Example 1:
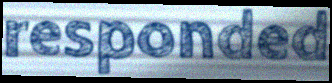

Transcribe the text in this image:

responded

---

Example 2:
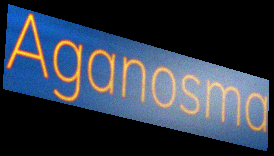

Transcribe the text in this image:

Aganosma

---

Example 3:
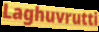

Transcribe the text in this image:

Laghuvrutti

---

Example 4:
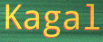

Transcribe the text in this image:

Kagal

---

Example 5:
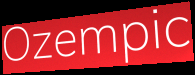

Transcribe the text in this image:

Ozempic